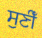
ਸੁਣੀਁ